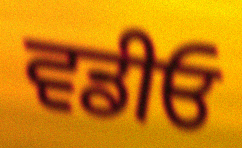
ਵਡੀਓ